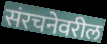
संरचनेवरील